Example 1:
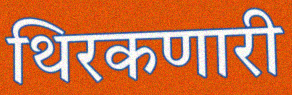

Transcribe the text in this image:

थिरकणारी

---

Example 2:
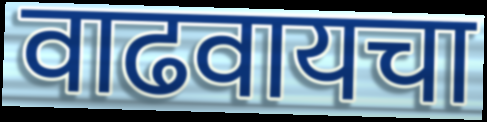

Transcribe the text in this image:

वाढवायचा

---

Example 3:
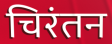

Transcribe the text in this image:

चिरंतन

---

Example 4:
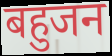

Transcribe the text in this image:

बहुजन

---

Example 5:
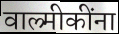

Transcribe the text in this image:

वाल्मीकींना